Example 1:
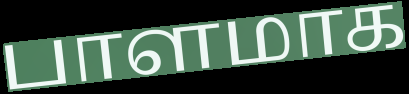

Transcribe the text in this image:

பாளமாக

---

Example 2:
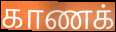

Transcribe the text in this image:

காணக்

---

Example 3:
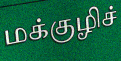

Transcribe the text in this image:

மக்குழிச்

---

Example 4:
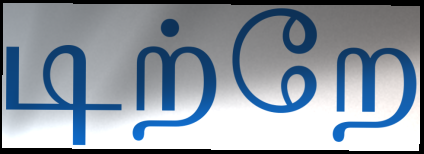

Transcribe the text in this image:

டிற்றே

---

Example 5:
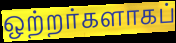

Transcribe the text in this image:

ஒற்றர்களாகப்